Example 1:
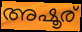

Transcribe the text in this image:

അഷൂര്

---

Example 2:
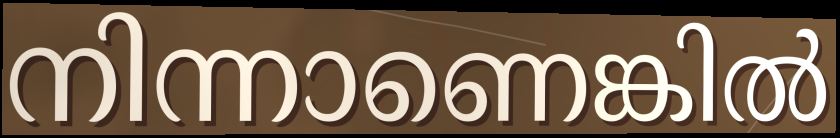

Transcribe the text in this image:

നിന്നാണെങ്കിൽ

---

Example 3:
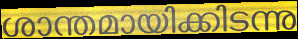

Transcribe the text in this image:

ശാന്തമായിക്കിടന്നു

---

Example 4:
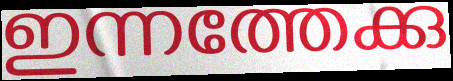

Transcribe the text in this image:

ഇന്നത്തേക്കു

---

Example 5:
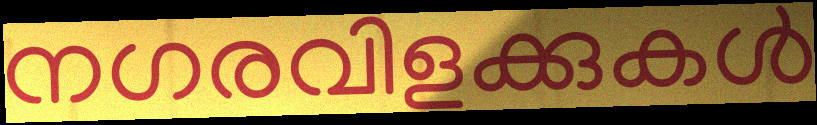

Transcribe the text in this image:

നഗരവിളക്കുകൾ